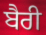
ਬੈਰੀ